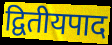
द्वितीयपाद